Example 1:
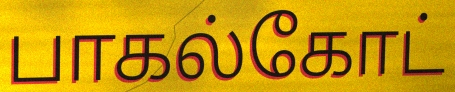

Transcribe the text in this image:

பாகல்கோட்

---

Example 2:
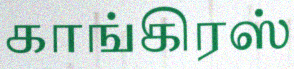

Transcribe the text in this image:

காங்கிரஸ்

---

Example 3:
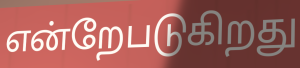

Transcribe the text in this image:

என்றேபடுகிறது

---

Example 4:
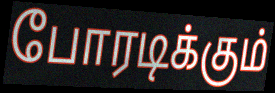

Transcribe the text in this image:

போரடிக்கும்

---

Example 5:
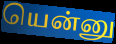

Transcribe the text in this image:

யென்னு